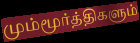
மும்மூர்த்திகளும்